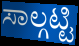
ಸಾಲ್ಗಟ್ಟಿ